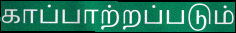
காப்பாற்றப்படும்